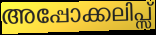
അപ്പോക്കലിപ്സ്